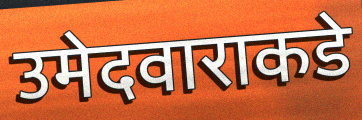
उमेदवाराकडे